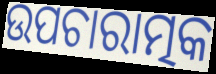
ଉପଚାରାତ୍ମକ